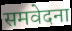
समवेदना